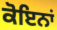
ਕੋਇਨਾਂ